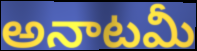
అనాటమీ